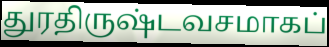
துரதிருஷ்டவசமாகப்